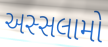
અસ્સલામો